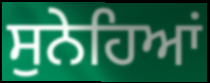
ਸੁਨੇਹਿਆਂ